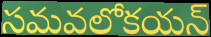
సమవలోకయన్